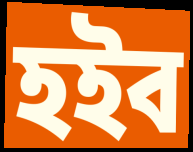
হইব